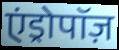
एंड्रोपॉज़